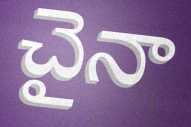
చైనా